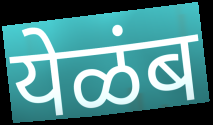
येळंब